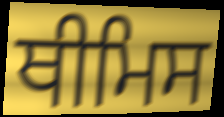
ਥੀਮਿਸ